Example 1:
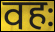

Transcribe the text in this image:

वहः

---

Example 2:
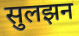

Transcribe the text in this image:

सुलझन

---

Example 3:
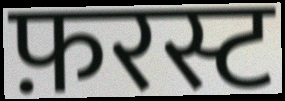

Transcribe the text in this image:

फ़रस्ट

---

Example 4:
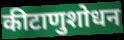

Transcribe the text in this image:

कीटाणुशोधन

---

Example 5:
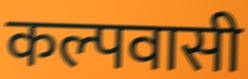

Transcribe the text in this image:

कल्पवासी